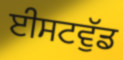
ਈਸਟਵੁੱਡ